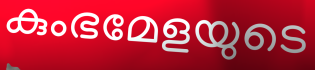
കുംഭമേളയുടെ